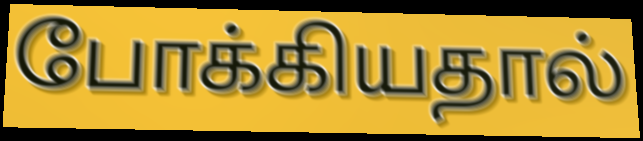
போக்கியதால்